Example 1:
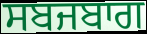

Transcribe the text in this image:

ਸਬਜਬਾਗ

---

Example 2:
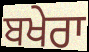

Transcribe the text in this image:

ਬਖੇਰਾ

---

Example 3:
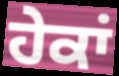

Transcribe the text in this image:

ਹੇਕਾਂ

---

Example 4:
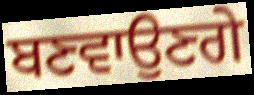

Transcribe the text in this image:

ਬਣਵਾਉਣਗੇ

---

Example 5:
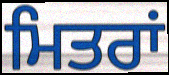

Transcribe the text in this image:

ਮਿਤਰਾਂ